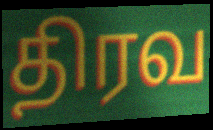
திரவ